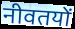
नीवतयों